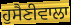
ਹੁਸੈਣੀਵਾਲਾ